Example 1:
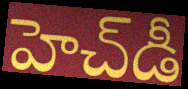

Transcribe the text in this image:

హెచ్‌డీ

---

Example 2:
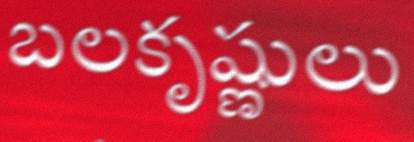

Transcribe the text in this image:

బలకృష్ణులు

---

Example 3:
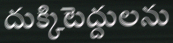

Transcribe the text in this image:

దుక్కిటెద్దులను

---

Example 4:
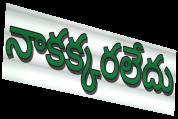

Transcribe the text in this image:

నాకక్కరలేదు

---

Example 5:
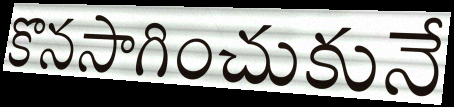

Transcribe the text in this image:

కొనసాగించుకునే